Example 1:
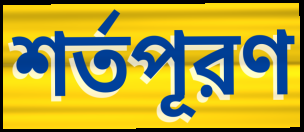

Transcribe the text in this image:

শর্তপূরণ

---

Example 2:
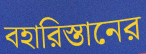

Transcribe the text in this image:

বহারিস্তানের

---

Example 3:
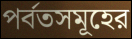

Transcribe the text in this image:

পর্বতসমূহের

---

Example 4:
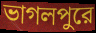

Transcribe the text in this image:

ভাগলপুরে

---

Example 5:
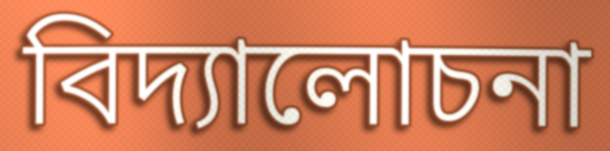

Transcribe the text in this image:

বিদ্যালোচনা